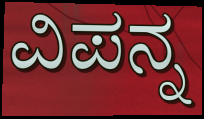
ವಿಪನ್ನ